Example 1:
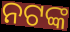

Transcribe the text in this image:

ନଟଙ୍କ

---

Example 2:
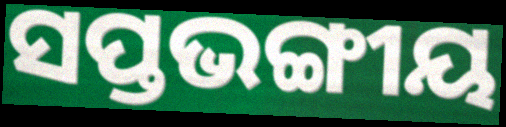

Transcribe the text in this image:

ସପ୍ତଭଙ୍ଗୀୟ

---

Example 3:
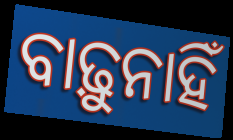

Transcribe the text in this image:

ବାଢ଼ୁନାହିଁ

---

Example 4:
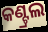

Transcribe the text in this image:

କଣ୍ଟ୍ରଲ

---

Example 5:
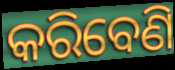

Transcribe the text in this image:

କରିବେଣି